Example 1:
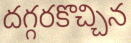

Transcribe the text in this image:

దగ్గరకొచ్చిన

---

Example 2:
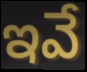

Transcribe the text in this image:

ఇవే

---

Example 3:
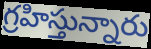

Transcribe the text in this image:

గ్రహిస్తున్నారు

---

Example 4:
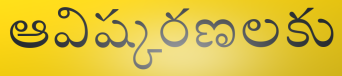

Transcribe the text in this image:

ఆవిష్కరణలకు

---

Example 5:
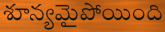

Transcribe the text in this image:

శూన్యమైపోయింది